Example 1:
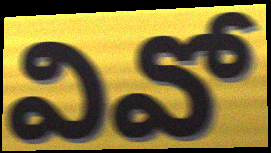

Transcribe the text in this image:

వివో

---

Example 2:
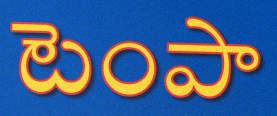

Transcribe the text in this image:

టెంపా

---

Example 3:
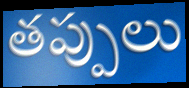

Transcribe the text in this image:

తప్పులు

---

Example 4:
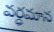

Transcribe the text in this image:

వర్ధమాన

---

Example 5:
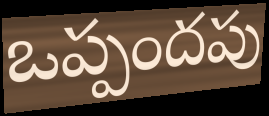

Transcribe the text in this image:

ఒప్పందపు